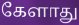
கேளாது